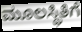
ಮೂಲಸ್ಥಿತಿಗೆ